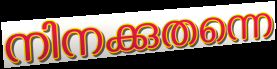
നിനക്കുതന്നെ